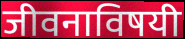
जीवनाविषयी